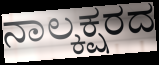
ನಾಲ್ಕಕ್ಷರದ